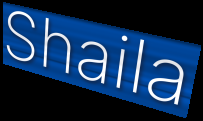
Shaila